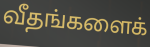
வீதங்களைக்